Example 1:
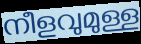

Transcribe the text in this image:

നീളവുമുള്ള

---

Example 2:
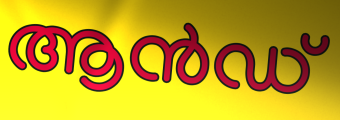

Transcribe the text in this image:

ആൻഡ്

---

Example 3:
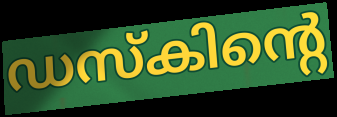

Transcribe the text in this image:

ഡസ്കിന്റെ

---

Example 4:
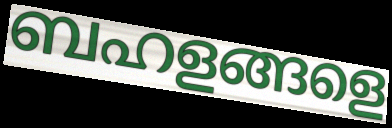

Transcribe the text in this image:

ബഹളങ്ങളെ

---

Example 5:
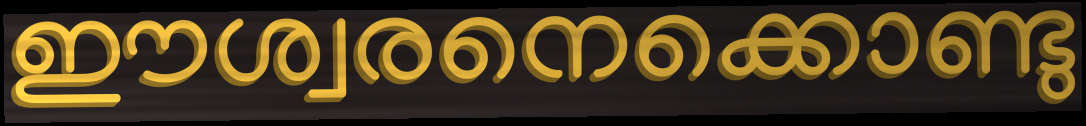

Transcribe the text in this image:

ഈശ്വരനെക്കൊണ്ടു